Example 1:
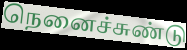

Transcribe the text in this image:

நெனைச்சுண்டு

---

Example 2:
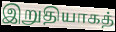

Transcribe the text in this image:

இறுதியாகத்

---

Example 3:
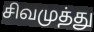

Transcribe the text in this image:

சிவமுத்து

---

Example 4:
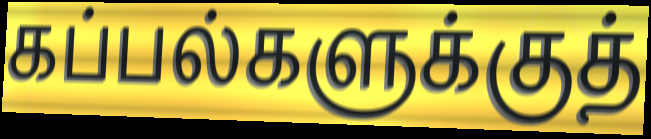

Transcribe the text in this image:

கப்பல்களுக்குத்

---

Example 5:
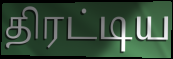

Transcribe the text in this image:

திரட்டிய